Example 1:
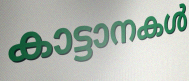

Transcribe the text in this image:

കാട്ടാനകൾ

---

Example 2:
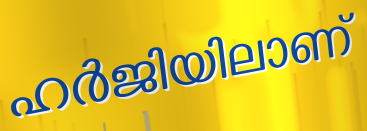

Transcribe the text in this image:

ഹർജിയിലാണ്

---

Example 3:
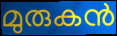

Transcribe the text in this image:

മുരുകൻ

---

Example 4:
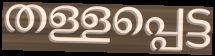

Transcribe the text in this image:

തള്ളപ്പെട്ട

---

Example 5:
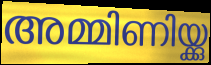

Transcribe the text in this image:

അമ്മിണിയ്ക്കു